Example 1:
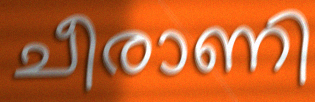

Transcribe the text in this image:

ചീരാണി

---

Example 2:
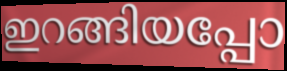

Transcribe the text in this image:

ഇറങ്ങിയപ്പോ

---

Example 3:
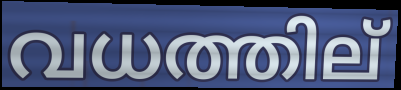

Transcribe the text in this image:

വധത്തില്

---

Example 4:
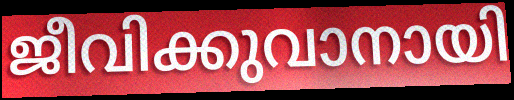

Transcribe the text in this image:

ജീവിക്കുവാനായി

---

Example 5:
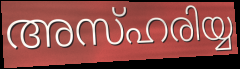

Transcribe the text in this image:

അസ്ഹരിയ്യ